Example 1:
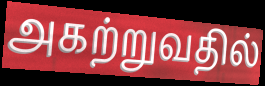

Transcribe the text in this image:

அகற்றுவதில்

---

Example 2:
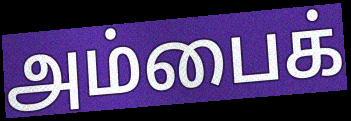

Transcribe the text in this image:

அம்பைக்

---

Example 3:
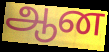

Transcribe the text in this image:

ஆன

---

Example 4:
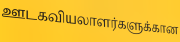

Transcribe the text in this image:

ஊடகவியலாளர்களுக்கான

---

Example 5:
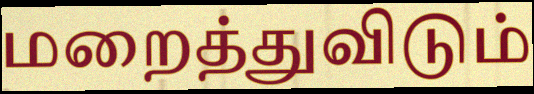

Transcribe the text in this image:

மறைத்துவிடும்